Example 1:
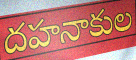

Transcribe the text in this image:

దహనాకుల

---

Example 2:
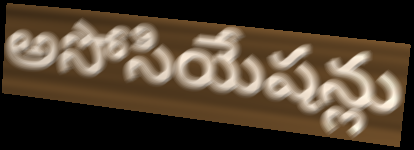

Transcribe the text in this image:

అసోసియేషన్లు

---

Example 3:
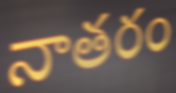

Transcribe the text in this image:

నాతరం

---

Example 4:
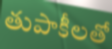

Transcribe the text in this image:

తుపాకీలతో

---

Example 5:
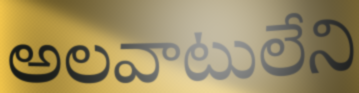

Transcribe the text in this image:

అలవాటులేని